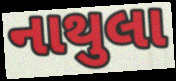
નાથુલા